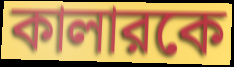
কালারকে